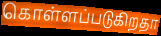
கொள்ளப்படுகிறதா